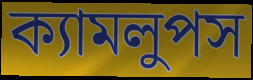
ক্যামলুপস